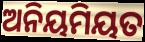
ଅନିୟମିୟତ